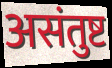
असंतुष्ट